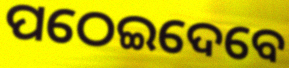
ପଠେଇଦେବେ